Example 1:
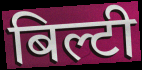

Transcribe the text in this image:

बिल्टी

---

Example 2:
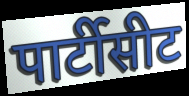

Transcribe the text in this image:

पार्टीसीट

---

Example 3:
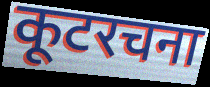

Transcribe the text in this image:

कूटरचना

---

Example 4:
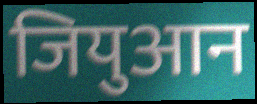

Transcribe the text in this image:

जियुआन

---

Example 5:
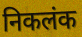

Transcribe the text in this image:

निकलंक